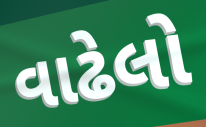
વાઢેલો